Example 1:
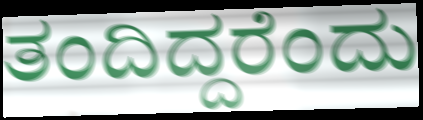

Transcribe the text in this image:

ತಂದಿದ್ದರೆಂದು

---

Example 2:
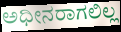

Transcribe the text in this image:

ಅಧೀನರಾಗಲಿಲ್ಲ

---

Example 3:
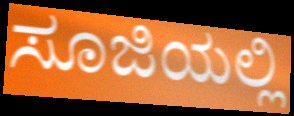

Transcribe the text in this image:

ಸೂಜಿಯಲ್ಲಿ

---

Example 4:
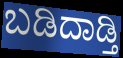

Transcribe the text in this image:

ಬಡಿದಾಡ್ತಿ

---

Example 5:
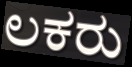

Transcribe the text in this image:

ಲಕರು